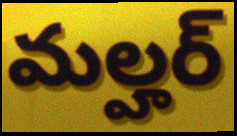
మల్హర్